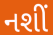
નશીં